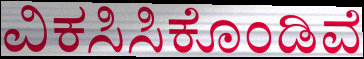
ವಿಕಸಿಸಿಕೊಂಡಿವೆ